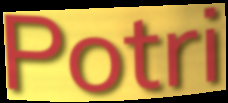
Potri